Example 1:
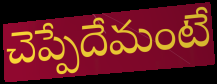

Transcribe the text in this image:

చెప్పేదేమంటే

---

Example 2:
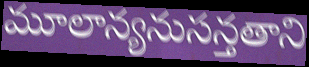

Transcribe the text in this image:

మూలాన్యనుసన్తతాని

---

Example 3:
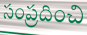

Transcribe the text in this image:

సంప్రదించి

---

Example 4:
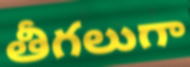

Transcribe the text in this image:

తీగలుగా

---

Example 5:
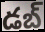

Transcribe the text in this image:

డబ్